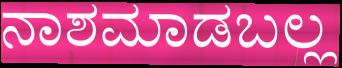
ನಾಶಮಾಡಬಲ್ಲ